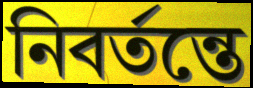
নিবর্তন্তে